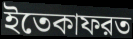
ইতেকাফরত